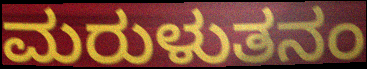
ಮರುಳುತನಂ